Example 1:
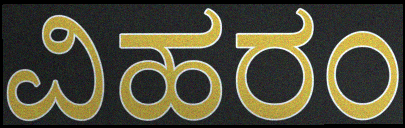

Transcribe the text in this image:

ವಿಹರಂ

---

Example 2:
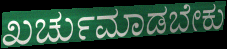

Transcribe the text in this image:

ಖರ್ಚುಮಾಡಬೇಕು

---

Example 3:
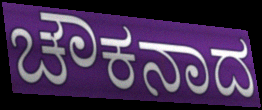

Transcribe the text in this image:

ಚೌಕನಾದ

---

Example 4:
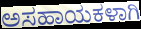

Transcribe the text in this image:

ಅಸಹಾಯಕಳಾಗಿ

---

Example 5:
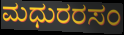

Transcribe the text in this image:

ಮಧುರರಸಂ